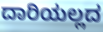
ದಾರಿಯಲ್ಲದ